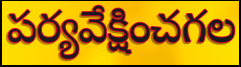
పర్యవేక్షించగల